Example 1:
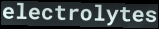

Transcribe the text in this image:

electrolytes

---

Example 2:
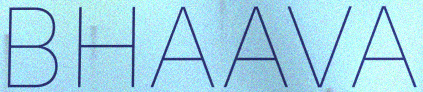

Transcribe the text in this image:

BHAAVA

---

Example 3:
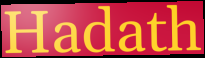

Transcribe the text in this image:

Hadath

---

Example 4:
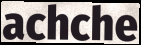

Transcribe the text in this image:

achche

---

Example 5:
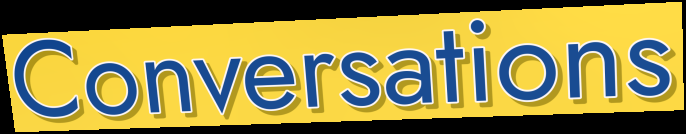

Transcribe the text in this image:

Conversations